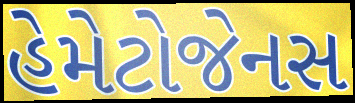
હેમેટોજેનસ